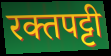
रक्तपट्टी